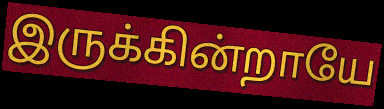
இருக்கின்றாயே